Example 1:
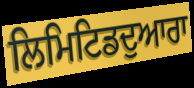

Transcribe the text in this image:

ਲਿਮਿਟਿਡਦੁਆਰਾ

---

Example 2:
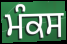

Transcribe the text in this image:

ਮੰਕਸ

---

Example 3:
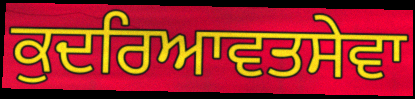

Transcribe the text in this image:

ਕੁਦਰਿਆਵਤਸੇਵਾ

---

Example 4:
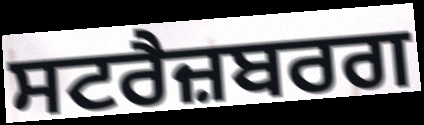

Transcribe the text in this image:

ਸਟਰੈਜ਼ਬਰਗ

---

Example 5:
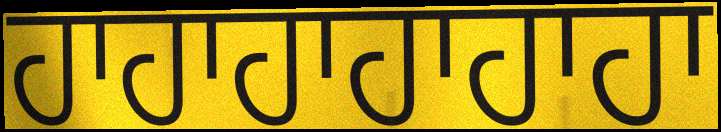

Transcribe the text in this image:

ਹਾਹਾਹਾਹਾਹਾਹਾ